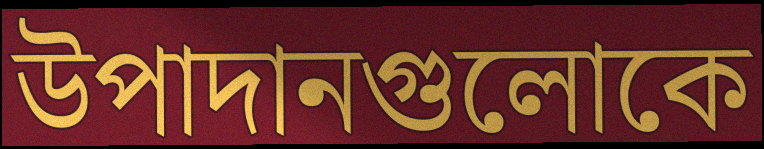
উপাদানগুলোকে